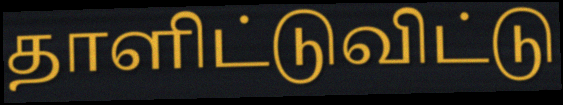
தாளிட்டுவிட்டு